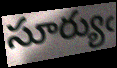
సూర్యుఁ